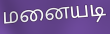
மனையடி